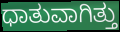
ಧಾತುವಾಗಿತ್ತು